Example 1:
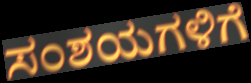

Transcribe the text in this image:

ಸಂಶಯಗಳಿಗೆ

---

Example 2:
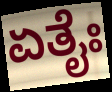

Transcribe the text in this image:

ಏತೈಃ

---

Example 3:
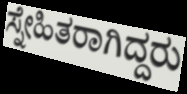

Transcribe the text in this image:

ಸ್ನೇಹಿತರಾಗಿದ್ದರು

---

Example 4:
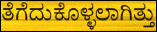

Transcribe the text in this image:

ತೆಗೆದುಕೊಳ್ಳಲಾಗಿತ್ತು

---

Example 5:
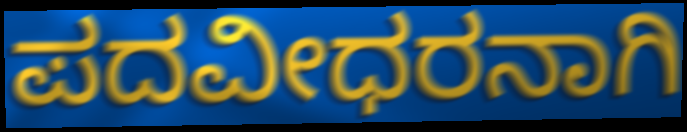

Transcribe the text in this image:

ಪದವೀಧರನಾಗಿ